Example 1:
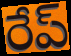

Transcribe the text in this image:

రేప్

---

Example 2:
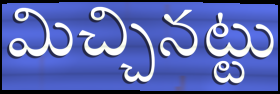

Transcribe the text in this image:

మిచ్చినట్టు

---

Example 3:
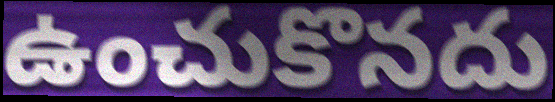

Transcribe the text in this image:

ఉంచుకొనదు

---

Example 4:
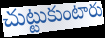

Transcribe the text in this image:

చుట్టుకుంటారు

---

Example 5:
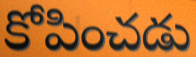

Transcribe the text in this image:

కోపించడు